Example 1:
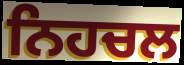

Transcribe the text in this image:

ਨਿਹਚਲ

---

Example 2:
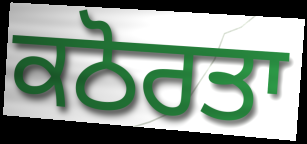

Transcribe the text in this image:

ਕਠੋਰਤਾ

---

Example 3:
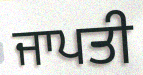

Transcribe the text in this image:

ਜਾਪਤੀ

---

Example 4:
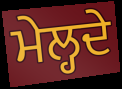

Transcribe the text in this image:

ਮੇਲ੍ਹਦੇ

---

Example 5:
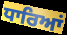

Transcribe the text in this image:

ਧਾਰਿਆਂ